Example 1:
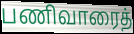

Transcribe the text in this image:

பணிவாரைத்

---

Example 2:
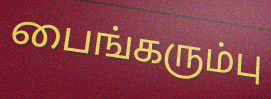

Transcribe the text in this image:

பைங்கரும்பு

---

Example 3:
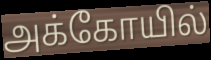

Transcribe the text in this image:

அக்கோயில்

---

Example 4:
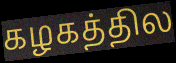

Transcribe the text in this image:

கழகத்தில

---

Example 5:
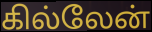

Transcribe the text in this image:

கில்லேன்